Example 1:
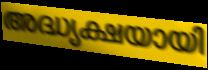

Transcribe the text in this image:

അദ്ധ്യക്ഷയായി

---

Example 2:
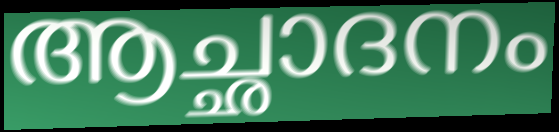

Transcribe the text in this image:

ആച്ഛാദനം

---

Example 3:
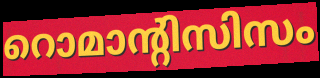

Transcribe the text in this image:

റൊമാന്റിസിസം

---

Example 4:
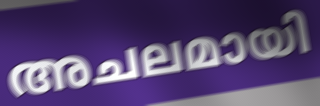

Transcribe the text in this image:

അചലമായി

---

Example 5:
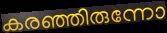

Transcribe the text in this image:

കരഞ്ഞിരുന്നോ